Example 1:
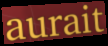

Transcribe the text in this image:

aurait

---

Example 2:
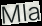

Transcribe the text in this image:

Mla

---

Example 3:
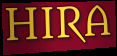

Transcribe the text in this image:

HIRA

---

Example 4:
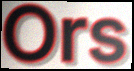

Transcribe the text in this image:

Ors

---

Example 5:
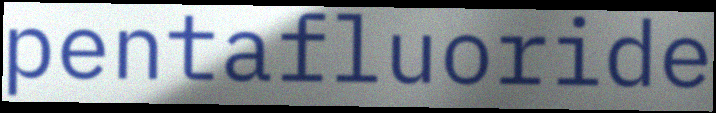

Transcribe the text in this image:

pentafluoride